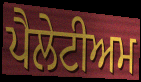
ਪੈਲੇਟੀਅਮ